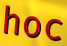
hoc